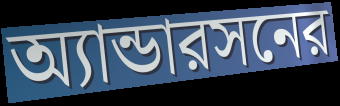
অ্যান্ডারসনের